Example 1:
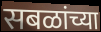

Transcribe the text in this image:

सबळांच्या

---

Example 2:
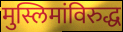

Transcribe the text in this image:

मुस्लिमांविरुद्ध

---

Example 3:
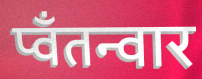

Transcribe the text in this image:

प्वॅंतन्वार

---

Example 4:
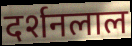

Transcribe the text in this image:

दर्शनलाल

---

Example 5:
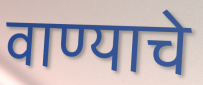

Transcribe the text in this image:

वाण्याचे